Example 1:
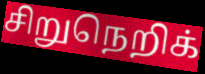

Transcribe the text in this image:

சிறுநெறிக்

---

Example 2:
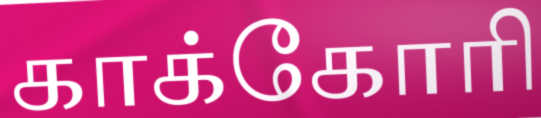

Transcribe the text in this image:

காக்கோரி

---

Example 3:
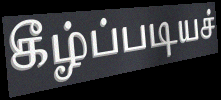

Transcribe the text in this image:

கீழ்ப்படியச்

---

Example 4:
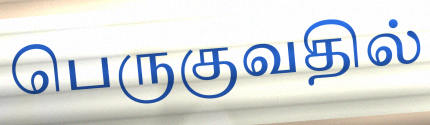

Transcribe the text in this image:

பெருகுவதில்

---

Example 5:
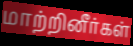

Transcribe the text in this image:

மாற்றினீர்கள்